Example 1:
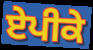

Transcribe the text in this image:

ਏਪੀਕੇ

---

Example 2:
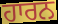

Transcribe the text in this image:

ਹਾਰਨ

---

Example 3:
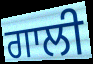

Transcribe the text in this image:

ਗਾਲੀ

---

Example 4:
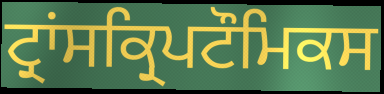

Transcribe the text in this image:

ਟ੍ਰਾਂਸਕ੍ਰਿਪਟੌਮਿਕਸ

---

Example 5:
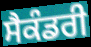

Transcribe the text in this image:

ਸੈਕੰਡਰੀ